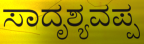
ಸಾದೃಶ್ಯವಪ್ಪ